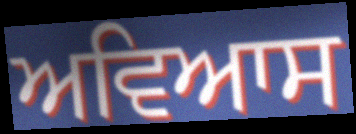
ਅਵਿਆਸ